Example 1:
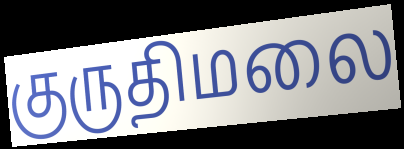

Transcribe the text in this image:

குருதிமலை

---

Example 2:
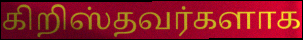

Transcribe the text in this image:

கிறிஸ்தவர்களாக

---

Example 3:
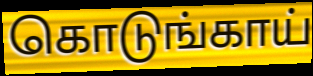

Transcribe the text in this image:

கொடுங்காய்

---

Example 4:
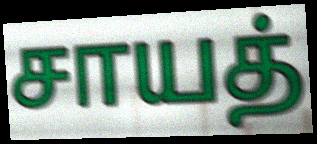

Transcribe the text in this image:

சாயத்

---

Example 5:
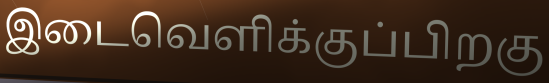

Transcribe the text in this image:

இடைவெளிக்குப்பிறகு